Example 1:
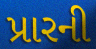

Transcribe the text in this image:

પ્રારની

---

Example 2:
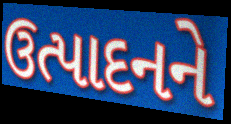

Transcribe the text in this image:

ઉત્પાદનને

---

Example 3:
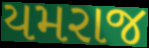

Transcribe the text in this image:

યમરાજ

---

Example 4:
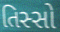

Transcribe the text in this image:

તિસ્સો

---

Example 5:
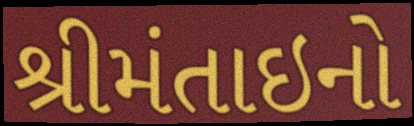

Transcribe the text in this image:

શ્રીમંતાઇનો